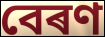
বেৰণ